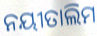
ନୟୀତାଲିମ